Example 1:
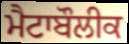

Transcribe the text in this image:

ਮੈਟਾਬੌਲੀਕ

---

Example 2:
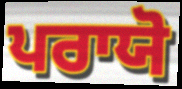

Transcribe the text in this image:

ਪਰਾਯੋ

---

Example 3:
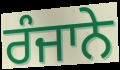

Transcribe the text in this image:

ਰੰਜਾਨੇ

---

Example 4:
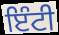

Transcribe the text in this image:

ਇੰਟੀ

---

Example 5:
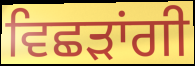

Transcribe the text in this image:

ਵਿਛੜਾਂਗੀ